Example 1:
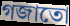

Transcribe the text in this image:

গজাতো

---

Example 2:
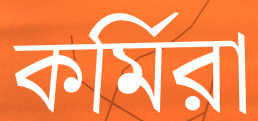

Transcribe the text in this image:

কর্মিরা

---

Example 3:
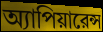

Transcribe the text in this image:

অ্যাপিয়ারেন্স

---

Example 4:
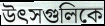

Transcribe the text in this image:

উৎসগুলিকে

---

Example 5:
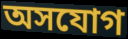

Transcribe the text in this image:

অসযোগ